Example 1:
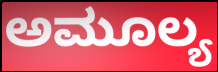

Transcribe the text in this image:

ಅಮೂಲ್ಯ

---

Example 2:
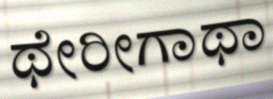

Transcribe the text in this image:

ಥೇರೀಗಾಥಾ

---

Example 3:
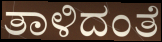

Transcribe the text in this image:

ತಾಳಿದಂತೆ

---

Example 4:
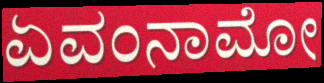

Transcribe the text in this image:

ಏವಂನಾಮೋ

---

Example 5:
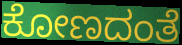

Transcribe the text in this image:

ಕೋಣದಂತೆ